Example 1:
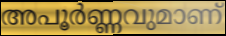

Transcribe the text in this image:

അപൂർണ്ണവുമാണ്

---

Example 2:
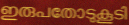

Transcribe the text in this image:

ഇരുപതോടുകൂടി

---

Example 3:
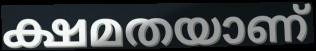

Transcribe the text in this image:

ക്ഷമതയാണ്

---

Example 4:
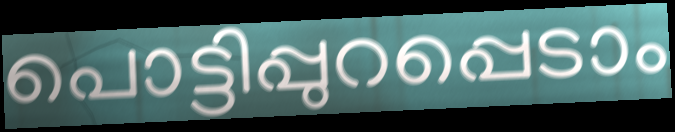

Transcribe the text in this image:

പൊട്ടിപ്പുറപ്പെടാം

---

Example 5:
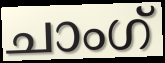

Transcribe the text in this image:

ചാംഗ്